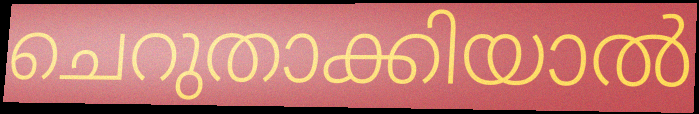
ചെറുതാക്കിയാൽ